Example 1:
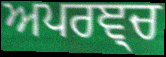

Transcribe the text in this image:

ਅਪਰਞ੍ਚ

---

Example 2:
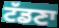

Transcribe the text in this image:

ਟੱਡਣਾ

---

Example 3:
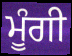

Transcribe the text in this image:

ਮੂੰਗੀ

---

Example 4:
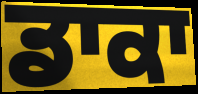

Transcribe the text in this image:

ਡਾਕਾ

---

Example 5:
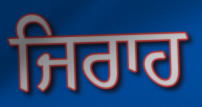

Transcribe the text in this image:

ਜਿਰਾਹ